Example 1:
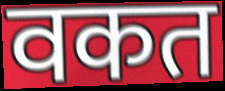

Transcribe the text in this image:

वकत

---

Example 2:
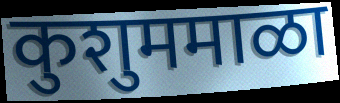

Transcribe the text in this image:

कुशुममाळा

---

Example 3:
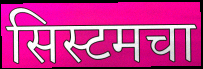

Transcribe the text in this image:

सिस्टमचा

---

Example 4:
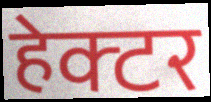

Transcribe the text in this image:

हेक्‍टर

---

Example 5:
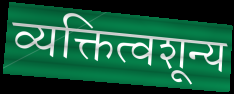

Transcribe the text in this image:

व्यक्तित्वशून्य